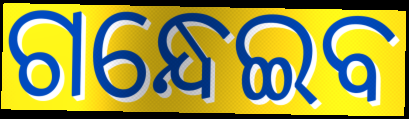
ଗନ୍ଧେଇବ